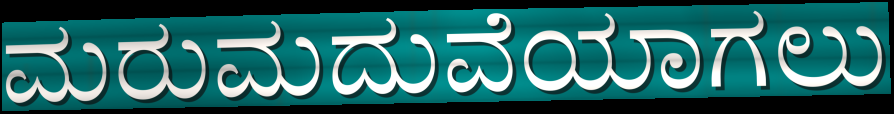
ಮರುಮದುವೆಯಾಗಲು